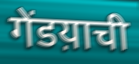
गेंडय़ाची